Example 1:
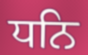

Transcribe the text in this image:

ਧਨਿ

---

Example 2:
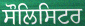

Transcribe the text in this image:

ਸੌਲਿਸਿਟਰ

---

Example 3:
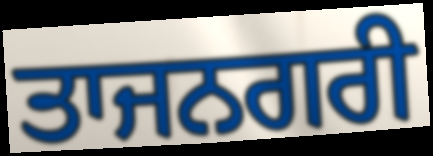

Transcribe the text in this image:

ਤਾਜਨਗਰੀ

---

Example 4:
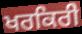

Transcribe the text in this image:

ਖਰਕਿਰੀ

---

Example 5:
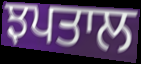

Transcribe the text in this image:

ਝਪਤਾਲ